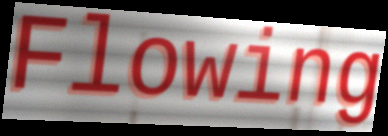
Flowing